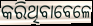
କରିଥିବାବେଳେ